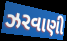
ઝરવાણી